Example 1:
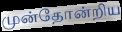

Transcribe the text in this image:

முன்தோன்றிய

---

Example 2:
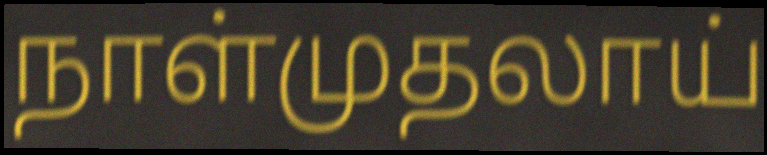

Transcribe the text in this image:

நாள்முதலாய்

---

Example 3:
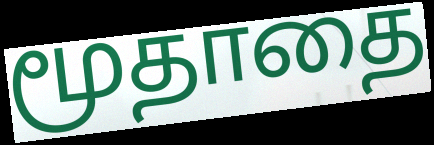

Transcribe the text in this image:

மூதாதை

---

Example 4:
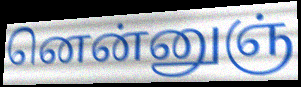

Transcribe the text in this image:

னென்னுஞ்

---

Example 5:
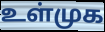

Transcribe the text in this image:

உள்முக